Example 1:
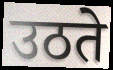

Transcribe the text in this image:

उठते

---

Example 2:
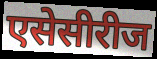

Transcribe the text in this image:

एसेसीरीज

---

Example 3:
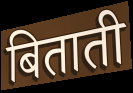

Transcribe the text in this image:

बिताती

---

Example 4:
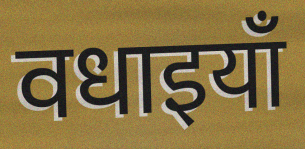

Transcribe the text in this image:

वधाइयाँ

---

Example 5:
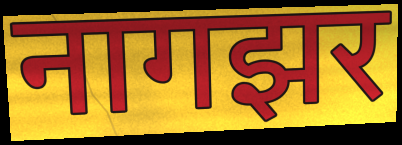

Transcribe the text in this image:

नागझर